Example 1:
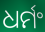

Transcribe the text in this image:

ଧର୍ମଂ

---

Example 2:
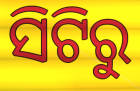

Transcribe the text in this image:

ସିଟିରୁ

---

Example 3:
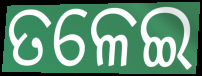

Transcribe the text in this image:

ତଳେଇ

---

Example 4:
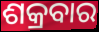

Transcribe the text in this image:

ଶକ୍ରବାର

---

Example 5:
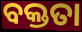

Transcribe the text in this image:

ବକ୍ତତା